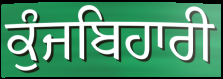
ਕੁੰਜਬਿਹਾਰੀ